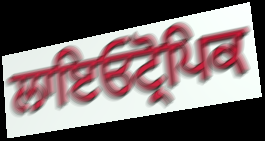
ਲਾਇਓਟ੍ਰੋਪਿਕ